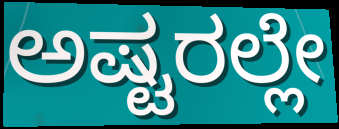
ಅಷ್ಟರಲ್ಲೇ